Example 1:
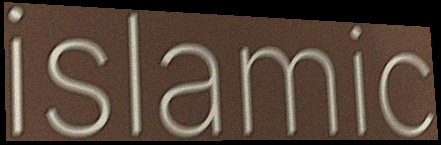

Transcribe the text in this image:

islamic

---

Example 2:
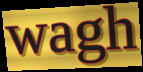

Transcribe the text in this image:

wagh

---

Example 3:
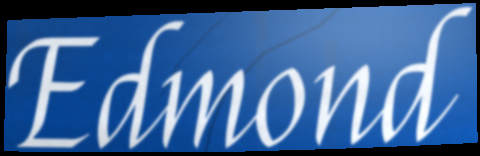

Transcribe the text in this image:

Edmond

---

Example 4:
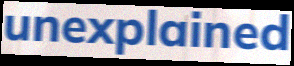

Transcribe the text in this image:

unexplained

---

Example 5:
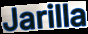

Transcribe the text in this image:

Jarilla